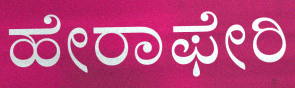
ಹೇರಾಫೇರಿ